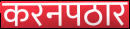
करनपठार